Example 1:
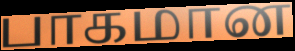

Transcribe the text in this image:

பாகமான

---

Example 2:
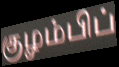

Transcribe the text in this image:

குழம்பிப்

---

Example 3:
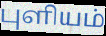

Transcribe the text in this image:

புளியம்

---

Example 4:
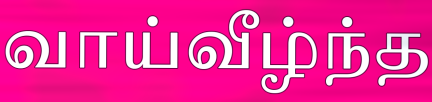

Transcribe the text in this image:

வாய்வீழ்ந்த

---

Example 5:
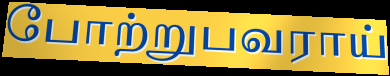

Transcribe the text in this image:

போற்றுபவராய்